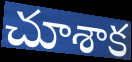
చూశాక